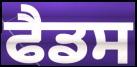
ਫੈਡਸ